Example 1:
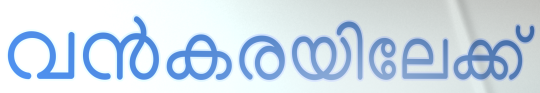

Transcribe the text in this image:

വൻകരയിലേക്ക്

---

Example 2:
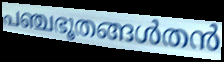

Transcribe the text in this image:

പഞ്ചഭൂതങ്ങൾതൻ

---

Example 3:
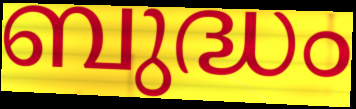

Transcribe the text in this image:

ബുദ്ധം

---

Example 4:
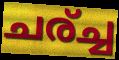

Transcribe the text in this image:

ചര്ച്ച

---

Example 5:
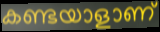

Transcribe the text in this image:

കണ്ടയാളാണ്